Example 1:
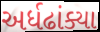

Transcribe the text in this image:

અર્ધઢાંક્યા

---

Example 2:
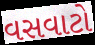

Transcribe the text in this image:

વસવાટો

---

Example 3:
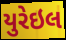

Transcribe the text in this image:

યુરેઇલ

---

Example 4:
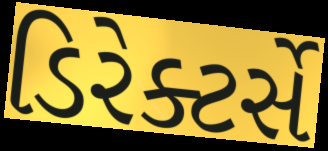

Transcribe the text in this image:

ડિરેક્ટર્સે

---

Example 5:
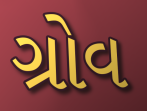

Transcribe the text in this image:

ગ્રોવ